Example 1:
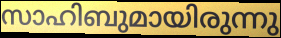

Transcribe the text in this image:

സാഹിബുമായിരുന്നു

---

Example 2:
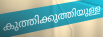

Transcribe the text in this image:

കുത്തിക്കുത്തിയുള്ള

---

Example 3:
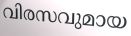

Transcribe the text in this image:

വിരസവുമായ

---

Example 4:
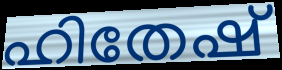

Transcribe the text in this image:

ഹിതേഷ്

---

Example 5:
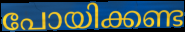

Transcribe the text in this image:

പോയിക്കണ്ട